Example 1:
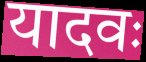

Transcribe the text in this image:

यादवः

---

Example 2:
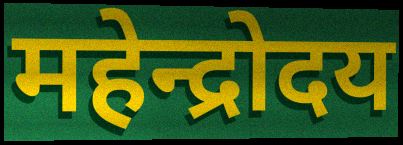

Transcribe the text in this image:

महेन्द्रोदय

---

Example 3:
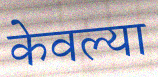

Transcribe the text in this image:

केवल्या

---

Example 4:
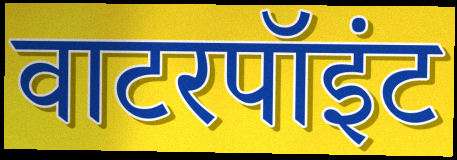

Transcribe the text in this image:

वाटरपॉइंट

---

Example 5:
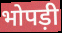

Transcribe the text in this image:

भोपड़ी